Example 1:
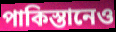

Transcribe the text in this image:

পাকিস্তানেও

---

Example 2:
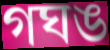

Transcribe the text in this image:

গঘঙ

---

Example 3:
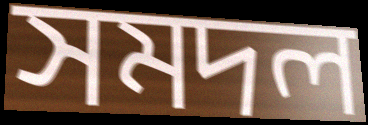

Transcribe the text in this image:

সমদল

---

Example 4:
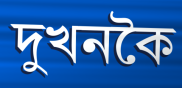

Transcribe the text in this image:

দুখনকৈ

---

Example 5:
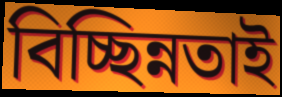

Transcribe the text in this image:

বিচ্ছিন্নতাই